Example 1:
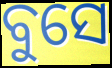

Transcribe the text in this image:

ବୁସେ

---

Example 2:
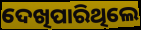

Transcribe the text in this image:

ଦେଖିପାରିଥିଲେ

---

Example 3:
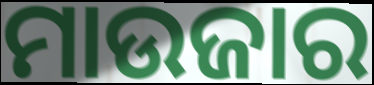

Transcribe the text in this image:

ମାଉଜାର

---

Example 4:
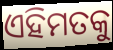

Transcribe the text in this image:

ଏହିମତକୁ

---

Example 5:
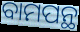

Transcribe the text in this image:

ବାମପନ୍ଥ